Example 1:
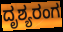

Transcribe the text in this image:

ದೃಶ್ಯರಂಗ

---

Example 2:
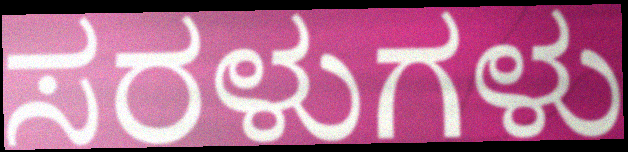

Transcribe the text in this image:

ಸರಳುಗಳು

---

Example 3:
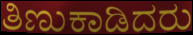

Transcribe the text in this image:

ತಿಣುಕಾಡಿದರು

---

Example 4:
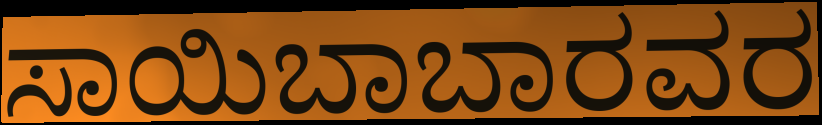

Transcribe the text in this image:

ಸಾಯಿಬಾಬಾರವರ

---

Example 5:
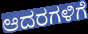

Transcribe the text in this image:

ಆದರಗಳಿಗೆ